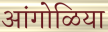
आंगोळिया